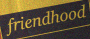
friendhood